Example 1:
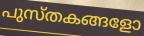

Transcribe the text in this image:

പുസ്തകങ്ങളോ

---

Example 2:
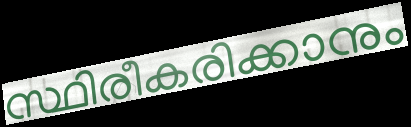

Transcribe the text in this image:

സ്ഥിരീകരിക്കാനും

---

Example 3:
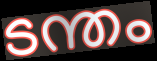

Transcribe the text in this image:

ടന്തം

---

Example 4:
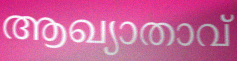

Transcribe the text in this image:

ആഖ്യാതാവ്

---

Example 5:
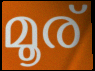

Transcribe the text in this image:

മൂര്